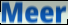
Meer